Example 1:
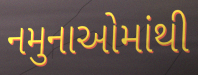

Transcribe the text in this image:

નમુનાઓમાંથી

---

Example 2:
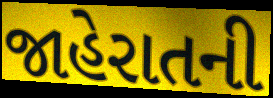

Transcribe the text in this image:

જાહેરાતની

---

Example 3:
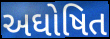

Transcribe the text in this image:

અઘોષિત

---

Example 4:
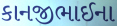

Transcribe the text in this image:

કાનજીભાઈના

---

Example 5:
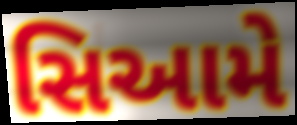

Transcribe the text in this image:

સિઆમે